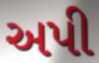
અપી